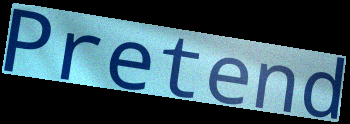
Pretend